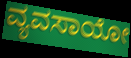
ವ್ಯವಸಾಯೋ